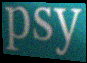
psy